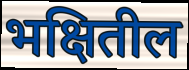
भक्षितील